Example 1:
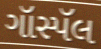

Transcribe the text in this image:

ગૉસ્પૅલ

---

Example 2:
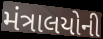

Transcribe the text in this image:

મંત્રાલયોની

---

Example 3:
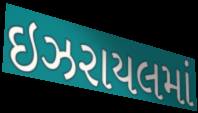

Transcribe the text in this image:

ઇઝરાયલમાં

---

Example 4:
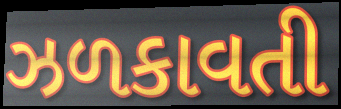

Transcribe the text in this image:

ઝળકાવતી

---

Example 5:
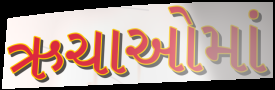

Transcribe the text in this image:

ઋચાઓમાં